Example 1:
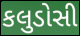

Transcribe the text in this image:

કલુડોસી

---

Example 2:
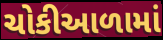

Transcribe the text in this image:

ચોકીઆળામાં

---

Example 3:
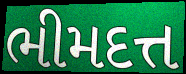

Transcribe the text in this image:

ભીમદત્ત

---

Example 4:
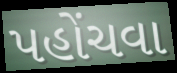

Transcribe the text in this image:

પહોંચવા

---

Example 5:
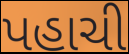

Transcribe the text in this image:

પહાચી